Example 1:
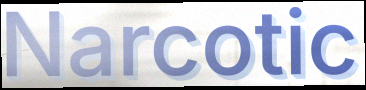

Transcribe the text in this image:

Narcotic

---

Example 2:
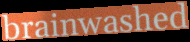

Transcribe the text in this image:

brainwashed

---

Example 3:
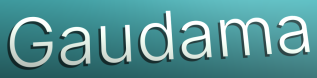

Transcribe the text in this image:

Gaudama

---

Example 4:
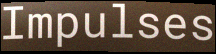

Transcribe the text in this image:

Impulses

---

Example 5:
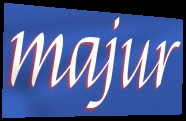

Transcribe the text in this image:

majur